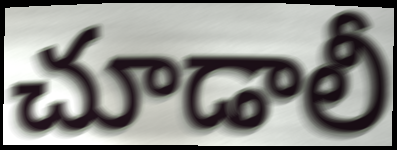
చూడాలీ